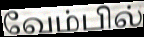
வேம்பில்